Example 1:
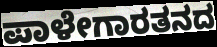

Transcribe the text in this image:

ಪಾಳೇಗಾರತನದ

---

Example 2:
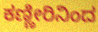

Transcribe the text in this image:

ಕಣ್ಣೀರಿನಿಂದ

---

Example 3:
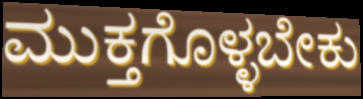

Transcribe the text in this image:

ಮುಕ್ತಗೊಳ್ಳಬೇಕು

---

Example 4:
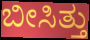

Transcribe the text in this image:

ಬೀಸಿತ್ತು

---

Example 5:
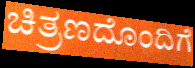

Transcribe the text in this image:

ಚಿತ್ರಣದೊಂದಿಗೆ